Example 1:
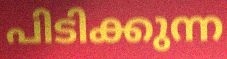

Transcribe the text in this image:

പിടിക്കുന്ന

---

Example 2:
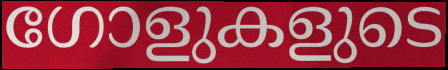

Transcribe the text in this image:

ഗോളുകളുടെ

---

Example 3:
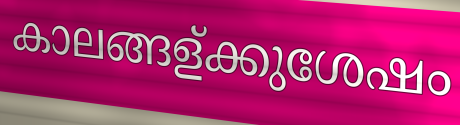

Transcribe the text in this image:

കാലങ്ങള്ക്കുശേഷം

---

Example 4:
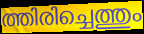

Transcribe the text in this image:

ത്തിരിച്ചെത്തും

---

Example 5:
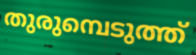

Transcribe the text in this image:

തുരുമ്പെടുത്ത്